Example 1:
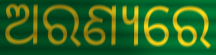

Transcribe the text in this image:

ଅରଣ୍ୟରେ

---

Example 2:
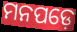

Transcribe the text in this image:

ମନପଡ଼େ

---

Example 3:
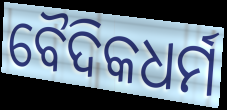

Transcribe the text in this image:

ବୈଦିକଧର୍ମ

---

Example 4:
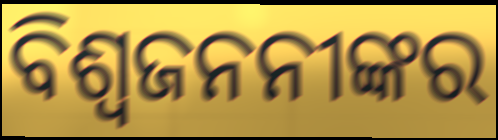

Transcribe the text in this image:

ବିଶ୍ୱଜନନୀଙ୍କର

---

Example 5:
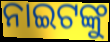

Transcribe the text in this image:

ନାଇଟଙ୍କୁ